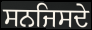
ਸਨਜਿਸਦੇ